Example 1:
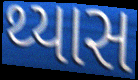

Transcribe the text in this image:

થ્યાસ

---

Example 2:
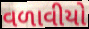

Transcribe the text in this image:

વળાવીયો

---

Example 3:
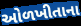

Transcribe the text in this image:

ઓળખીતાના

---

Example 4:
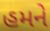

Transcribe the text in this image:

હમને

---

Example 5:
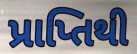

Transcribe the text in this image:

પ્રાપ્તિથી